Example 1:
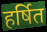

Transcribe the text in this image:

हर्षित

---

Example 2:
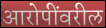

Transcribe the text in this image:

आरोपींवरील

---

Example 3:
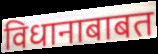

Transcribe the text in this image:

विधानाबाबत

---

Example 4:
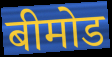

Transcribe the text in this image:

बीमोड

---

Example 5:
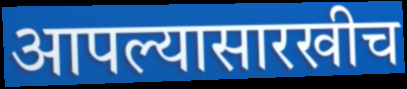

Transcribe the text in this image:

आपल्यासारखीच